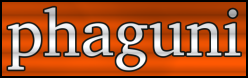
phaguni